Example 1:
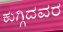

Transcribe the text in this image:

ಕುಗ್ಗಿದವರ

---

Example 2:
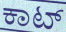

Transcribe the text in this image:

ಕಾಟ್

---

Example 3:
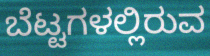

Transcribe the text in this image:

ಬೆಟ್ಟಗಳಲ್ಲಿರುವ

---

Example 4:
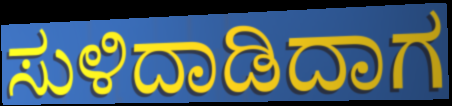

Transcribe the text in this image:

ಸುಳಿದಾಡಿದಾಗ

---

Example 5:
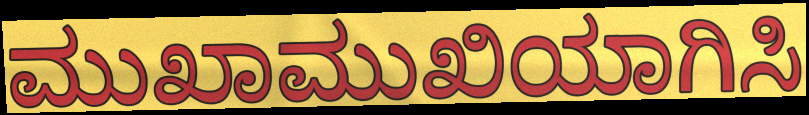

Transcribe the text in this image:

ಮುಖಾಮುಖಿಯಾಗಿಸಿ